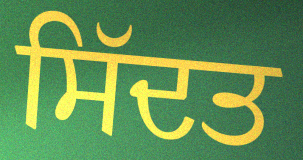
ਸਿੱਦਤ